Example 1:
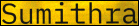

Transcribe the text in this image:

Sumithra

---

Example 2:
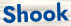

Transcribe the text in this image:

Shook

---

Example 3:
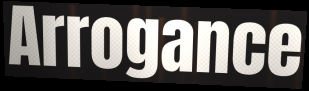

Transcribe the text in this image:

Arrogance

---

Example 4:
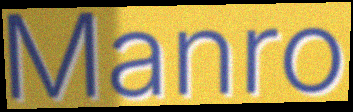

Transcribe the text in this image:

Manro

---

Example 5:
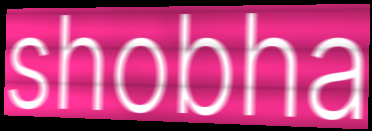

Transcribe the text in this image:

shobha